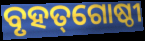
ବୃହତ୍‌ଗୋଷ୍ଠୀ